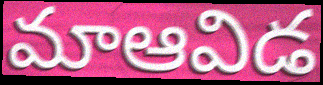
మాఆవిడ